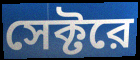
সেক্টরে